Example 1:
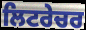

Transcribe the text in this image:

ਲਿਟਰੇਚਰ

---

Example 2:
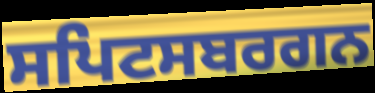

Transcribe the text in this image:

ਸਪਿਟਸਬਰਗਨ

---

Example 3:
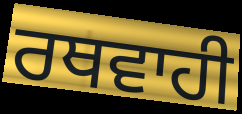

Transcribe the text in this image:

ਰਥਵਾਹੀ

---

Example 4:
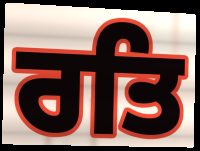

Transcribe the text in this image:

ਰਤਿ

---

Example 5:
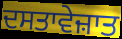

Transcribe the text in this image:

ਦਸਤਾਵੇਜ਼ਾਤ